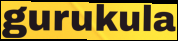
gurukula